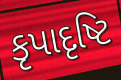
કૃપાદૃષ્ટિ